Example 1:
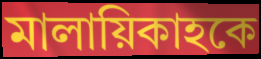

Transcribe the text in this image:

মালায়িকাহকে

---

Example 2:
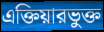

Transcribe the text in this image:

এক্তিয়ারভুক্ত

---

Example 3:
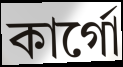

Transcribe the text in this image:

কার্গো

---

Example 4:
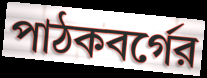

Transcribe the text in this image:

পাঠকবর্গের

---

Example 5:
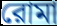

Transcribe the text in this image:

রোমা